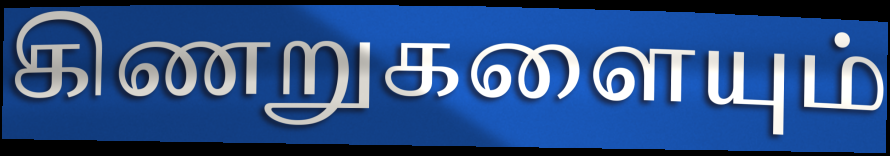
கிணறுகளையும்